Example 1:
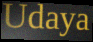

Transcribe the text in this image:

Udaya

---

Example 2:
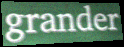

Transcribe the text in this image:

grander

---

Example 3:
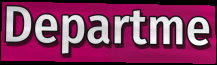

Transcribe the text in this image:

Departme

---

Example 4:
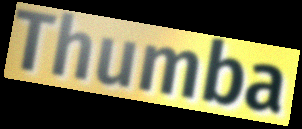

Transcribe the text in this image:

Thumba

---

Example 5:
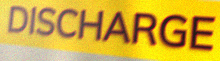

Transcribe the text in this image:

DISCHARGE